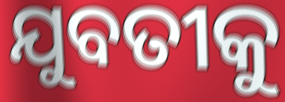
ଯୁବତୀକୁ